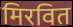
मिरवित